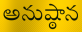
అనుష్ఠాన